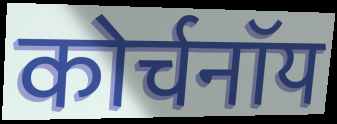
कोर्चनॉय